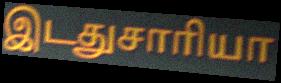
இடதுசாரியா